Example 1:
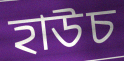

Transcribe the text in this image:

হাউচ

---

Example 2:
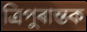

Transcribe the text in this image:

ত্ৰিপুৰান্তক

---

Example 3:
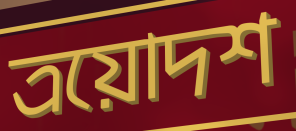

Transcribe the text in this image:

ত্ৰয়োদশ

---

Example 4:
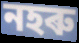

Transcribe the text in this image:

নহৰু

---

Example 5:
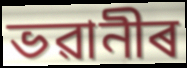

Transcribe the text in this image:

ভৱানীৰ